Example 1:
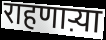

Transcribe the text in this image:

राहणाऱ्‍या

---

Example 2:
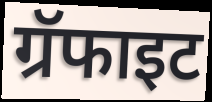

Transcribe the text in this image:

ग्रॅफाइट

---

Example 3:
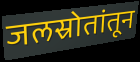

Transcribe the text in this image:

जलस्रोतांतून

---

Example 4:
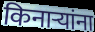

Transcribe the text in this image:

किनाऱ्यांना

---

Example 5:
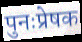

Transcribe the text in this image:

पुनःप्रेषक